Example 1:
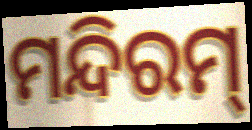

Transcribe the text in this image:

ମନ୍ଦିରମ୍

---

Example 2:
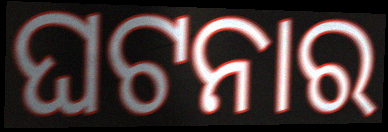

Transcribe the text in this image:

ଘଟନାର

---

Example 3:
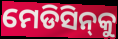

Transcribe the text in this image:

ମେଡିସିନ୍‌କୁ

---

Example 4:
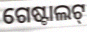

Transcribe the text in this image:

ଗେଷ୍ଟାଲଟ୍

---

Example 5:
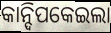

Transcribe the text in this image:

କାନ୍ଦିପକେଇଲା